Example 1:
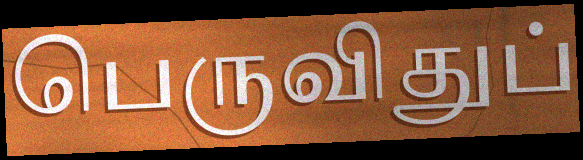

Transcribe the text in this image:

பெருவிதுப்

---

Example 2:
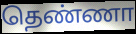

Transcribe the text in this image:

தெண்ணா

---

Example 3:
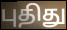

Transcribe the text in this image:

புதிது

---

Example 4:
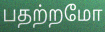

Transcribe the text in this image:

பதற்றமோ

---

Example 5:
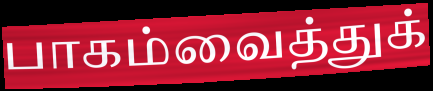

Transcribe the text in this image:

பாகம்வைத்துக்